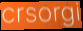
crsorgi